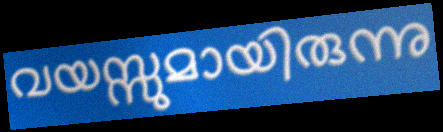
വയസ്സുമായിരുന്നു